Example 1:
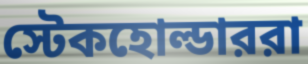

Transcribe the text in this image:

স্টেকহোল্ডাররা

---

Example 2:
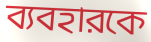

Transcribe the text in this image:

ব্যবহারকে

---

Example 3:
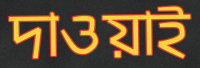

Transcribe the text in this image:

দাওয়াই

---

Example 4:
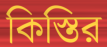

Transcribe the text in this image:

কিস্তির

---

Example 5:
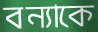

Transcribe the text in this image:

বন্যাকে